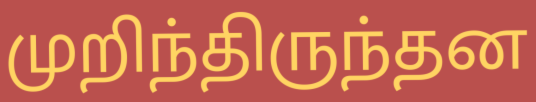
முறிந்திருந்தன